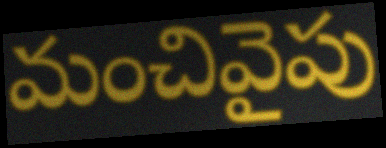
మంచివైపు